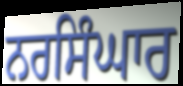
ਨਰਸਿੰਘਾਰ